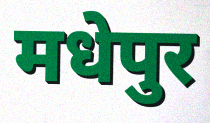
मधेपुर